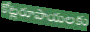
కోట్లరూపాయలకు